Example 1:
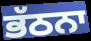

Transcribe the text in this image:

ਭੱਠਨਾ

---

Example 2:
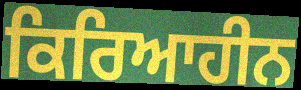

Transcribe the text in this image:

ਕਿਰਿਆਹੀਨ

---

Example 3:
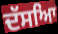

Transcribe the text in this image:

ਦੱਸਆਿ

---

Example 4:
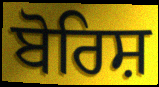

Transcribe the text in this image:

ਬੋਰਿਸ਼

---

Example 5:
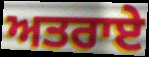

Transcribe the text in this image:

ਅਤਰਾਏ